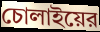
চোলাইয়ের